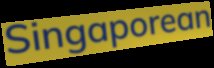
Singaporean